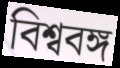
বিশ্ববঙ্গ